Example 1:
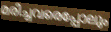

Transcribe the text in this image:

മരിച്ചവരെപ്പോലും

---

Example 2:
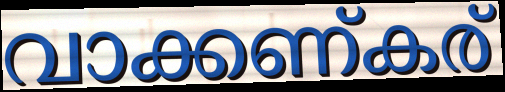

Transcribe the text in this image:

വാക്കണ്കര്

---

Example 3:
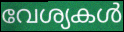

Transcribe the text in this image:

വേശ്യകൾ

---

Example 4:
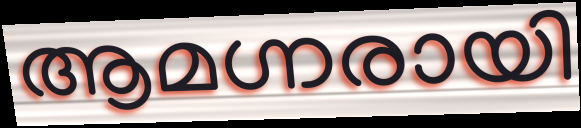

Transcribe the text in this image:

ആമഗ്നരായി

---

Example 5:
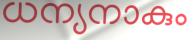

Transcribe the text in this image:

ധന്യനാകും